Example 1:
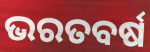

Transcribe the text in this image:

ଭରତବର୍ଷ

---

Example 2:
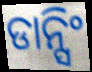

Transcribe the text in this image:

ଡାନ୍ସିଂ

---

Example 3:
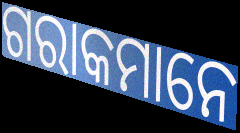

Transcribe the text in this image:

ଗରାକମାନେ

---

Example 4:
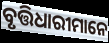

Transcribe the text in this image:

ବୃତ୍ତିଧାରୀମାନେ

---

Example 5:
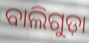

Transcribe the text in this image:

ବାଲିଗୁଡ଼ା